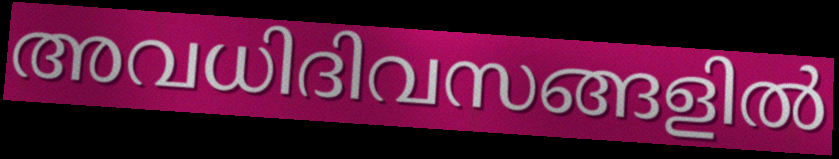
അവധിദിവസങ്ങളിൽ